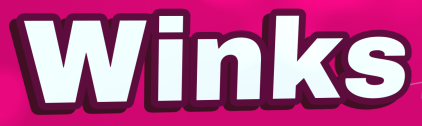
Winks